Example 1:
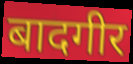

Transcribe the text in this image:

बादगीर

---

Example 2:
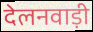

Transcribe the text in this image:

देलनवाड़ी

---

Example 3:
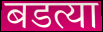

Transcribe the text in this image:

बडत्या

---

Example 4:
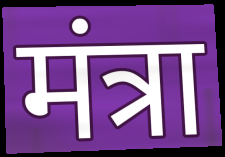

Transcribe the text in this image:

मंत्रा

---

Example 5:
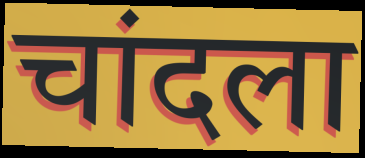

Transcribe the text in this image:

चांदला